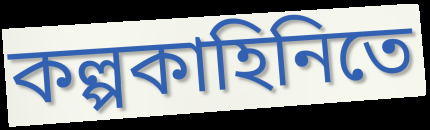
কল্পকাহিনিতে